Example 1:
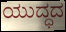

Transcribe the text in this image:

ಯುದ್ಧದ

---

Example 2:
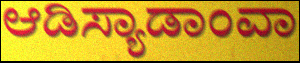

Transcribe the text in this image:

ಆಡಿಸ್ಯಾಡಾಂವಾ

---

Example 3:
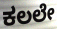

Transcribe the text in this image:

ಕಲಲೇ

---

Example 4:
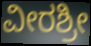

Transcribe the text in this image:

ವೀರಶ್ರೀ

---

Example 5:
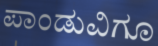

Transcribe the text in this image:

ಪಾಂಡುವಿಗೂ